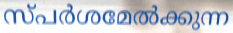
സ്പർശമേൽക്കുന്ന